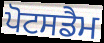
ਪੋਟਸਡੈਮ